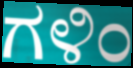
ಗಳಿಂ